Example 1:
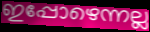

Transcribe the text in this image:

ഇപ്പോഴെന്നല്ല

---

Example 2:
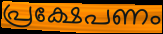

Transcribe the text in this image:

പ്രക്ഷേപണം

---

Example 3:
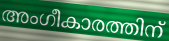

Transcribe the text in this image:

അംഗീകാരത്തിന്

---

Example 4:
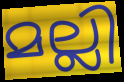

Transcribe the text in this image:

മല്ലി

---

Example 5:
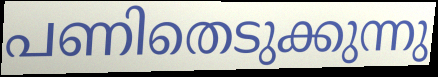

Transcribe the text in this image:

പണിതെടുക്കുന്നു